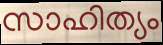
സാഹിത്യം